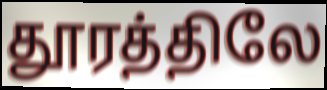
தூரத்திலே